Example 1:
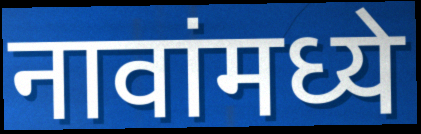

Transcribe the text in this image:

नावांमध्ये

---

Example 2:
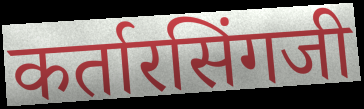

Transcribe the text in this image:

कर्तारसिंगजी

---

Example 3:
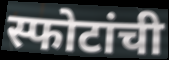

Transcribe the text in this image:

स्फोटांची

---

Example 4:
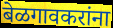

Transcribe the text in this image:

बेळगावकरांना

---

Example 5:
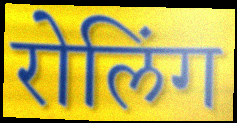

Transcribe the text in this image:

रोलिंग